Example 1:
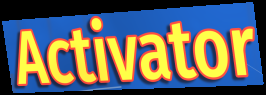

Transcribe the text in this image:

Activator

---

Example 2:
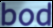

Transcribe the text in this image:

bod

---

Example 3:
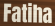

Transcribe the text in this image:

Fatiha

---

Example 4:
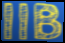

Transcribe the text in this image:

IIB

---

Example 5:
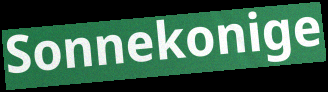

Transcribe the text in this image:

Sonnekonige